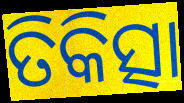
ତିକିତ୍ସା